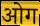
ओग